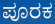
ಪೂರಕ